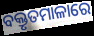
ବକ୍ତୃତମାଳାରେ